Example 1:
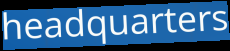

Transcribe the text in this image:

headquarters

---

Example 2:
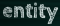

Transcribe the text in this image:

entity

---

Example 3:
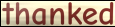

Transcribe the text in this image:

thanked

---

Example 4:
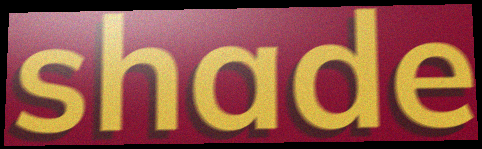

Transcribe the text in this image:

shade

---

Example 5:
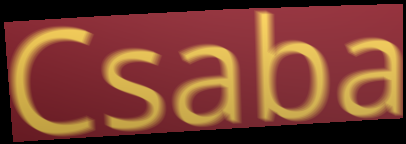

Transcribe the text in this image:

Csaba